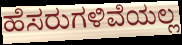
ಹೆಸರುಗಳಿವೆಯಲ್ಲ